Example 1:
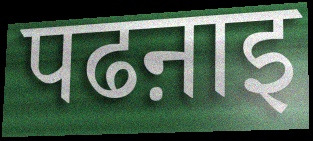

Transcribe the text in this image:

पढऩाइ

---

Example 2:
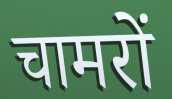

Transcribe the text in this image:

चामरों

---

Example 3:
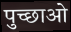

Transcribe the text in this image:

पुच्छाओ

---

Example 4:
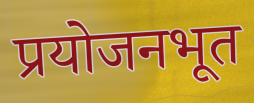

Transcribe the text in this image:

प्रयोजनभूत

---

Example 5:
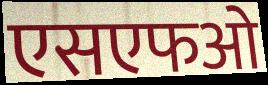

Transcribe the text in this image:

एसएफओ